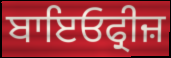
ਬਾਇਓਫ੍ਰੀਜ਼